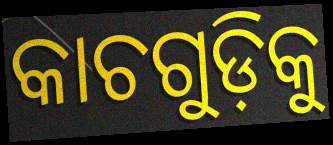
କାଚଗୁଡ଼ିକୁ